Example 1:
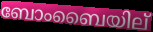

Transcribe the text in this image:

ബോംബൈയില്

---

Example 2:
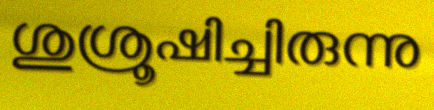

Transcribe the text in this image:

ശുശ്രൂഷിച്ചിരുന്നു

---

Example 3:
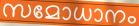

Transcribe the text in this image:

സമോധാനം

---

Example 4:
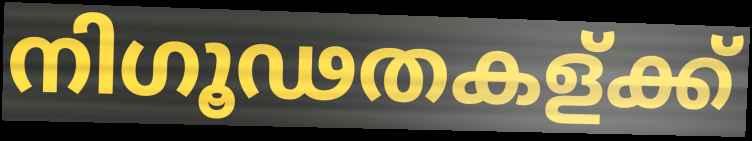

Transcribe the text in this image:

നിഗൂഢതകള്ക്ക്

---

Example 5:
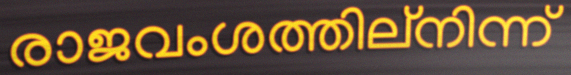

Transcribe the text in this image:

രാജവംശത്തില്നിന്ന്